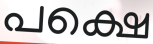
പക്ഷെ